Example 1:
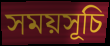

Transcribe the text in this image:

সময়সূচি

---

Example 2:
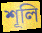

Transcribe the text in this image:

শূলি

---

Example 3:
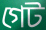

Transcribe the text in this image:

গেট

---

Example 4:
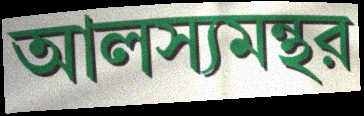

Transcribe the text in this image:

আলস্যমন্থর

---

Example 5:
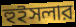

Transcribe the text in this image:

হুইসলার